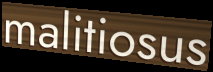
malitiosus